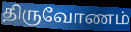
திருவோணம்